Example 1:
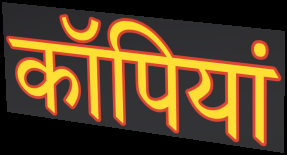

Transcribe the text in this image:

कॉपियां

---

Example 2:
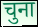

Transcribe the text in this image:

चुना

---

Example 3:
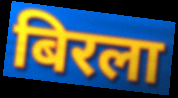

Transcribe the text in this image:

बिरला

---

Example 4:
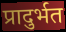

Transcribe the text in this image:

प्रादुर्भत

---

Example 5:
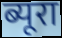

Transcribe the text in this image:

ब्यूरा